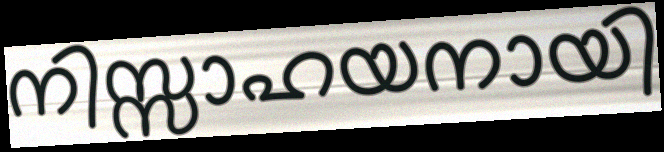
നിസ്സാഹയനായി